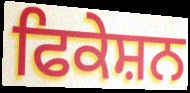
ਫਿਕੇਸ਼ਨ